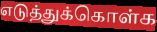
எடுத்துக்கொள்க